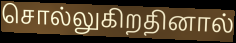
சொல்லுகிறதினால்